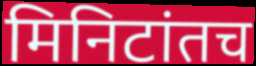
मिनिटांतच